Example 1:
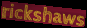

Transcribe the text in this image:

rickshaws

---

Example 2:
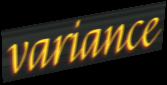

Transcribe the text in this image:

variance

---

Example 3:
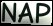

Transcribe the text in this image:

NAP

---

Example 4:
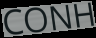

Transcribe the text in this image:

CONH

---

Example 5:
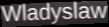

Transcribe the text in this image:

Wladyslaw